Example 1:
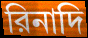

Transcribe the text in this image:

রিনাদি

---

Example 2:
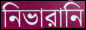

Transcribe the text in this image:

নিভারানি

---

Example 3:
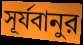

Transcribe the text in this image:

সূর্যবানুর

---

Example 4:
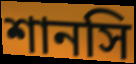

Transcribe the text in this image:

শানসি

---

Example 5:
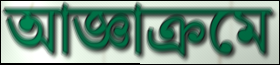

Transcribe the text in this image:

আজ্ঞাক্রমে